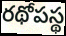
రథోపస్థ